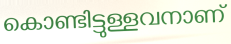
കൊണ്ടിട്ടുള്ളവനാണ്